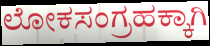
ಲೋಕಸಂಗ್ರಹಕ್ಕಾಗಿ